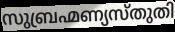
സുബ്രഹ്മണ്യസ്തുതി